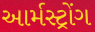
આર્મસ્ટ્રોંગ